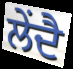
ਲੇਂਦੈ